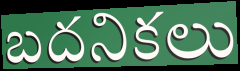
బదనికలు